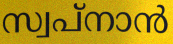
സ്വപ്നാൻ